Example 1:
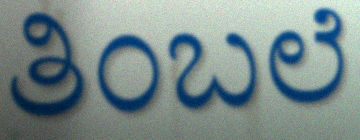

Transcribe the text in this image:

ತಿಂಬಲೆ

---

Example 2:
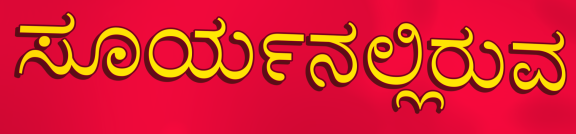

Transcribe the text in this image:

ಸೂರ್ಯನಲ್ಲಿರುವ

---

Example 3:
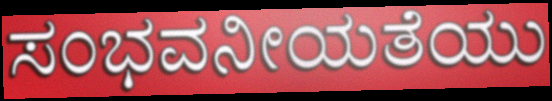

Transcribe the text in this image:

ಸಂಭವನೀಯತೆಯು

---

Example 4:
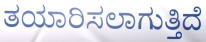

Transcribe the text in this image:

ತಯಾರಿಸಲಾಗುತ್ತಿದೆ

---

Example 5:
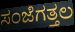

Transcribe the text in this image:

ಸಂಜೆಗತ್ತಲ